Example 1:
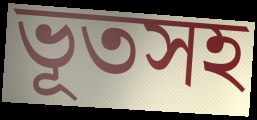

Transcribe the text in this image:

ভূতসহ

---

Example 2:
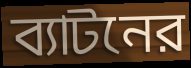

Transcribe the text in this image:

ব্যাটনের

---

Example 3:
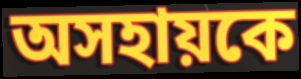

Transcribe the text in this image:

অসহায়কে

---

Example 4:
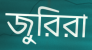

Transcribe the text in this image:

জুরিরা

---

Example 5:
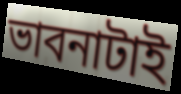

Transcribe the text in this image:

ভাবনাটাই